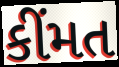
કીંમત